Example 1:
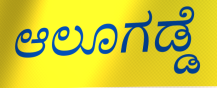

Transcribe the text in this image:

ಆಲೂಗಡ್ಡೆ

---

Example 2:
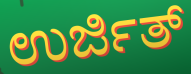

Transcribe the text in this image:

ಉರ್ಜಿತ್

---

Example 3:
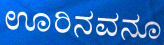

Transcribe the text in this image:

ಊರಿನವನೂ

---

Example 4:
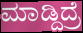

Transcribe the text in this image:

ಮಾಡ್ದಿದ್ರೆ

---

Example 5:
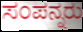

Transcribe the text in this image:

ಸಂಪನ್ನರು